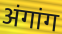
अंगांग